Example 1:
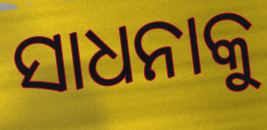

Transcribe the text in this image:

ସାଧନାକୁ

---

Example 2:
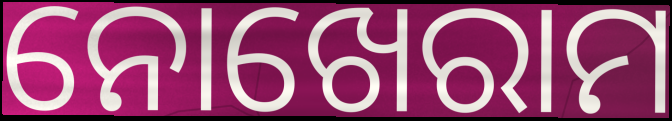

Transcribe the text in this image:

ନୋଖେରାମ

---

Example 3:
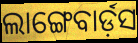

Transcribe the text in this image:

ଲାଙ୍ଗେବାର୍ଡ଼ସ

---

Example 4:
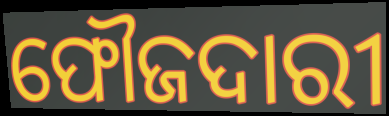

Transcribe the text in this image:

ଫୌଜଦାରୀ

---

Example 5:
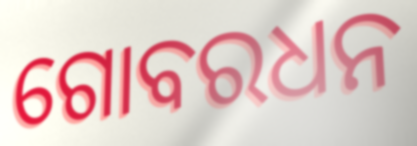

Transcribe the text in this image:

ଗୋବରଧନ